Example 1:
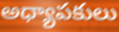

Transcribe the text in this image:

అధ్యాపకులు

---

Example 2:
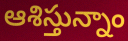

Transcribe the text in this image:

ఆశిస్తున్నాం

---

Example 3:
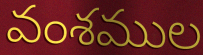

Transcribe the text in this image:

వంశముల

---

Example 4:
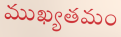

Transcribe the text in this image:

ముఖ్యతమం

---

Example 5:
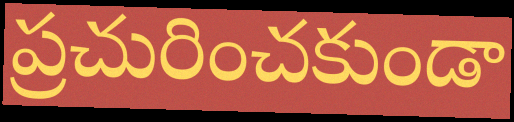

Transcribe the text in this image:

ప్రచురించకుండా